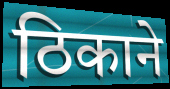
ठिकाने